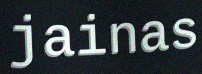
jainas